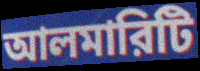
আলমারিটি